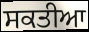
ਸਕਤੀਆ